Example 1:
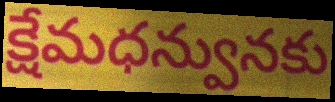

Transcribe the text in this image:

క్షేమధన్వునకు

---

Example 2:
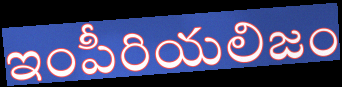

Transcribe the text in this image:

ఇంపీరియలిజం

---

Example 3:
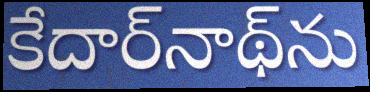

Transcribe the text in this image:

కేదార్‌నాథ్‌ను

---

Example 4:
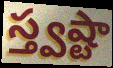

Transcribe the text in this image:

స్త్వష్టా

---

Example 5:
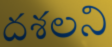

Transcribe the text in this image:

దశలని